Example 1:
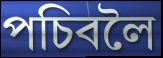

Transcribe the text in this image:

পচিবলৈ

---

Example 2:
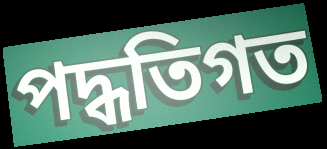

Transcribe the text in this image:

পদ্ধতিগত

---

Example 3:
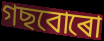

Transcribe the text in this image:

গছবোৰো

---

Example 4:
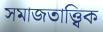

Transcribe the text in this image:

সমাজতাত্ত্বিক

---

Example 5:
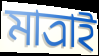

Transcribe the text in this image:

মাত্ৰাই